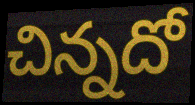
చిన్నదో